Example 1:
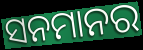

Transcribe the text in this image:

ସନମାନର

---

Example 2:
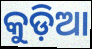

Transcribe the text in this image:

କୁଡ଼ିଆ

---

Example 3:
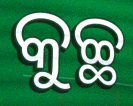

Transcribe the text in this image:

କୁଚ୍ଛ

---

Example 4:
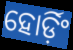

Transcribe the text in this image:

ହୋର୍ଡ଼ିଂ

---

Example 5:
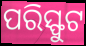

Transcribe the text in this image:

ପରିସ୍ଫୁଟ